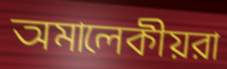
অমালেকীয়রা